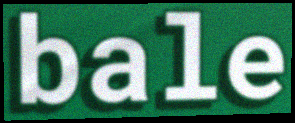
bale